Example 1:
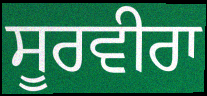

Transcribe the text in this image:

ਸੂਰਵੀਰਾ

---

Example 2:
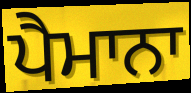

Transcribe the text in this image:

ਪੈਮਾਨਾ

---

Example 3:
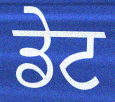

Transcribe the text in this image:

ਡੇਟ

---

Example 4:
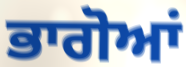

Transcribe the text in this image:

ਭਾਗੋਆਂ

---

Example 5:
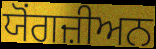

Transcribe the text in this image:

ਯੋਂਗਜ਼ੀਅਨ